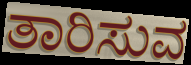
ತಾರಿಸುವ